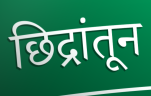
छिद्रांतून